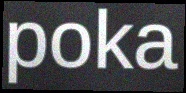
poka